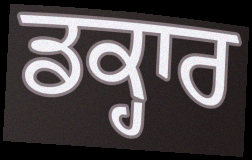
ਡਕ੍ਹਾਰ